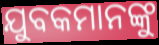
ଯୁବକମାନଙ୍କୁ